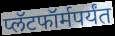
प्लॅटफॉर्मपर्यंत